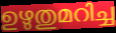
ഉഴുതുമറിച്ച